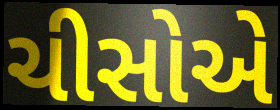
ચીસોએ